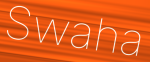
Swaha